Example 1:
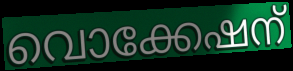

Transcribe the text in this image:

വൊക്കേഷന്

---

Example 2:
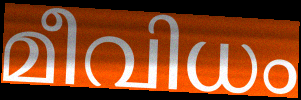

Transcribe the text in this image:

മീവിധം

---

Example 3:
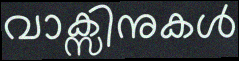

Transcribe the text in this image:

വാക്സിനുകൾ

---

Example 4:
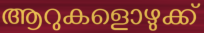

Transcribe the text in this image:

ആറുകളൊഴുക്ക്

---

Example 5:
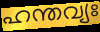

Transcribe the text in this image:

ഹന്തവ്യഃ